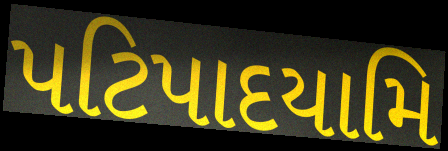
પટિપાદયામિ